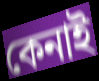
কেনাই